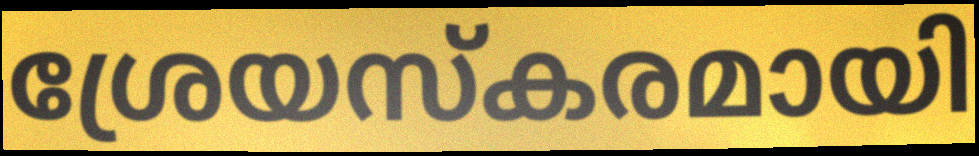
ശ്രേയസ്കരമായി